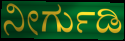
ನೀರ್ಗುಡಿ